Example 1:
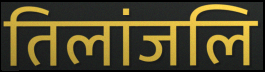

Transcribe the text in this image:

तिलांजलि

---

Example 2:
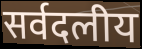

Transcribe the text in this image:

सर्वदलीय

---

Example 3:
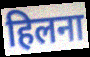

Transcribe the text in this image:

हिलना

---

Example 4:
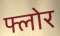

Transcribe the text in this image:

फ्लोर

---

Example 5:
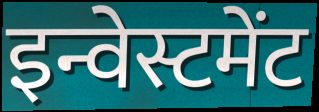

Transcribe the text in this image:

इन्वेस्टमेंट